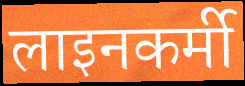
लाइनकर्मी